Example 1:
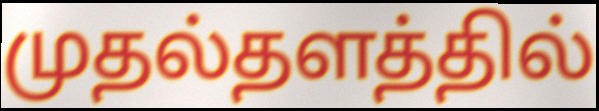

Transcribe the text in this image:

முதல்தளத்தில்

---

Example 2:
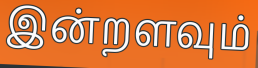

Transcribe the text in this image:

இன்றளவும்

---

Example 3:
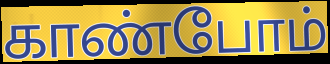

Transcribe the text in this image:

காண்போம்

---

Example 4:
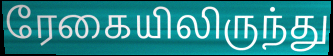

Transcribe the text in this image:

ரேகையிலிருந்து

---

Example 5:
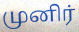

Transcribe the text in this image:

முனிர்